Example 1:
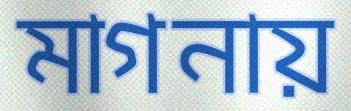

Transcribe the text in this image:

মাগনায়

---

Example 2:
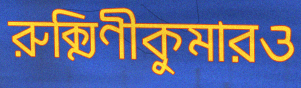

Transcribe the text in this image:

রুক্মিণীকুমারও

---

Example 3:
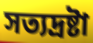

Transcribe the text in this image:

সত্যদ্রষ্টা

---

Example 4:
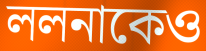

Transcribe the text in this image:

ললনাকেও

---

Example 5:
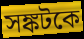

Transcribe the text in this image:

সঙ্কটকে